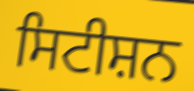
ਸਿਟੀਸ਼ਨ